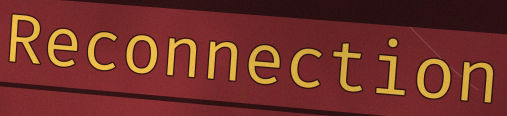
Reconnection